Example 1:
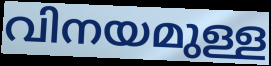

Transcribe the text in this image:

വിനയമുള്ള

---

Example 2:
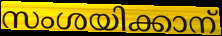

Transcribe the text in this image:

സംശയിക്കാന്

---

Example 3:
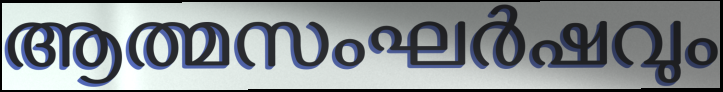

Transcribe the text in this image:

ആത്മസംഘർഷവും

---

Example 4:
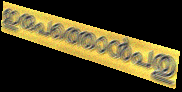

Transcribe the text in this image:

ഇരുപത്തൊൻപതു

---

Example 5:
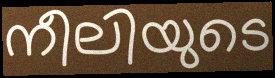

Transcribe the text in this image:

നീലിയുടെ